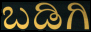
ಬಡಿಗಿ